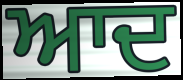
ਆਦ